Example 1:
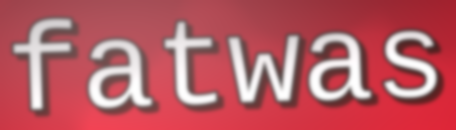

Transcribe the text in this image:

fatwas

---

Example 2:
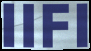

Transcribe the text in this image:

IIFI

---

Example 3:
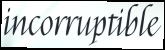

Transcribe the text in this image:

incorruptible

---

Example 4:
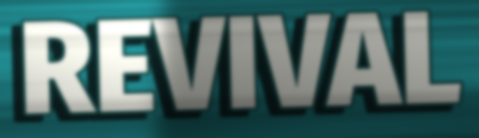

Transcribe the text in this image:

REVIVAL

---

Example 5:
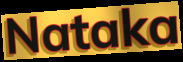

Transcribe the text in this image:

Nataka